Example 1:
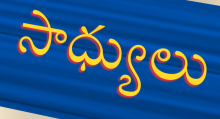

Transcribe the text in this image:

సాధ్యులు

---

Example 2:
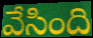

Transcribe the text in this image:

వేసింది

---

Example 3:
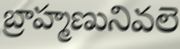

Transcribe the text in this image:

బ్రాహ్మణునివలె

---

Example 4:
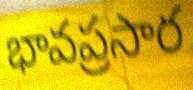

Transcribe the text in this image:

భావప్రసార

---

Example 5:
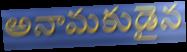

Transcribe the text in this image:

అనామకుడైన